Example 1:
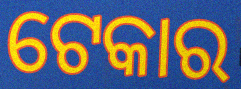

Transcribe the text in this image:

ଟେକାର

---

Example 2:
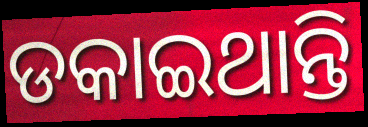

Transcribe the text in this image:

ଡକାଇଥାନ୍ତି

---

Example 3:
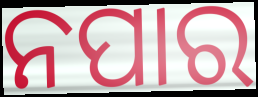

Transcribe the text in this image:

ନପାର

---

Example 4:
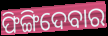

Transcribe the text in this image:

ଫିଙ୍ଗିଦେବାର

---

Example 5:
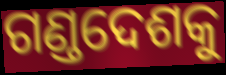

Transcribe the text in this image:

ଗଣ୍ଡଦେଶକୁ